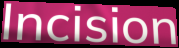
Incision